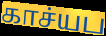
காச்யப